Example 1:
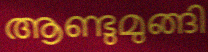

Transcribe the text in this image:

ആണ്ടുമുങ്ങി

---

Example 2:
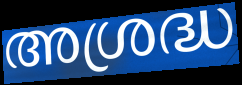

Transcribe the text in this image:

അശ്രദ്ധ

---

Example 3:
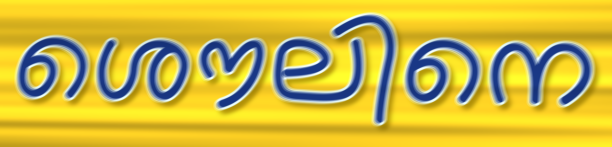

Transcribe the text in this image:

ശൌലിനെ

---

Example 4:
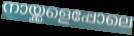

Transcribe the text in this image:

നായ്ക്കളെപ്പോലെ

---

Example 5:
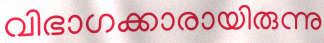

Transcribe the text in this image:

വിഭാഗക്കാരായിരുന്നു